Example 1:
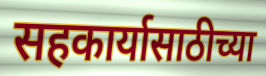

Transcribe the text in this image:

सहकार्यासाठीच्या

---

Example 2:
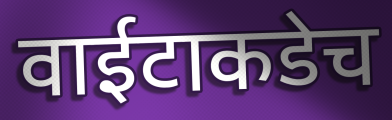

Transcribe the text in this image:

वाईटाकडेच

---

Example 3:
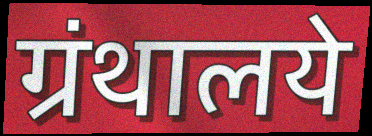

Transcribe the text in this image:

ग्रंथालये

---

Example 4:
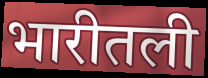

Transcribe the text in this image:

भारीतली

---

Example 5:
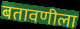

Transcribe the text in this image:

बतावणीला